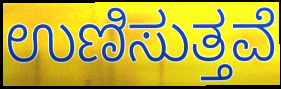
ಉಣಿಸುತ್ತವೆ